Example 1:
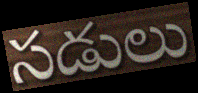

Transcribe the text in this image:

సడులు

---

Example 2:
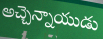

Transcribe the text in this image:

అచ్చెన్నాయుడు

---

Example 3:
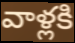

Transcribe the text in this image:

వాళ్లకి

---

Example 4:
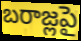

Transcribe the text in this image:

బరాజ్లపై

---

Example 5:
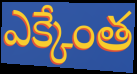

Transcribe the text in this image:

ఎక్కేంత